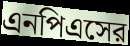
এনপিএসের